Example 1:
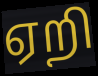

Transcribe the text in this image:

ஏறி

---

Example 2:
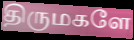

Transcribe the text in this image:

திருமகளே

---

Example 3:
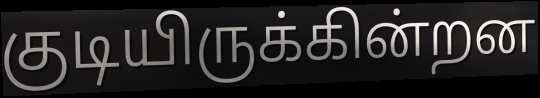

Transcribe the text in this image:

குடியிருக்கின்றன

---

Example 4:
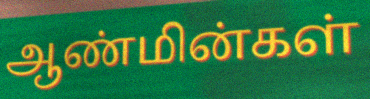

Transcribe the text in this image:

ஆண்மின்கள்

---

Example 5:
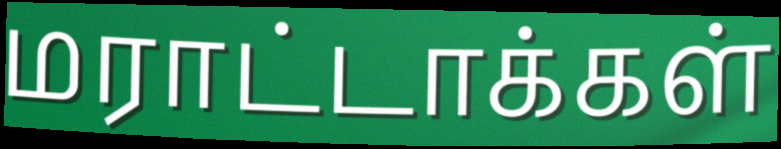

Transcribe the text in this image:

மராட்டாக்கள்